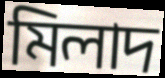
মিলাদ